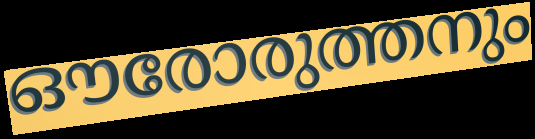
ഔരോരുത്തനും